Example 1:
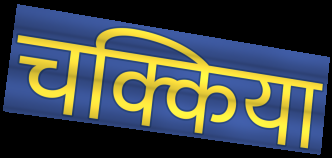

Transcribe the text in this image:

चक्किया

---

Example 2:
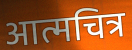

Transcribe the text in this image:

आत्मचित्र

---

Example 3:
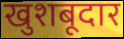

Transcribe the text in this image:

खुशबूदार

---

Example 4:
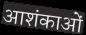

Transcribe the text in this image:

आशंकाओं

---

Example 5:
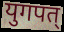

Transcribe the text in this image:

युगपत्